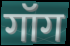
गॉग